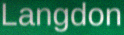
Langdon